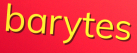
barytes